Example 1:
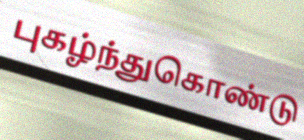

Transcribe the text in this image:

புகழ்ந்துகொண்டு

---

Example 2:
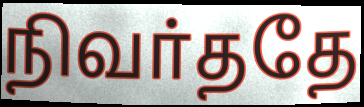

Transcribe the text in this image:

நிவர்ததே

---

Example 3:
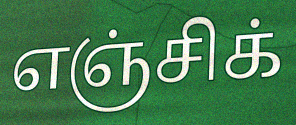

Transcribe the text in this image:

எஞ்சிக்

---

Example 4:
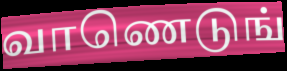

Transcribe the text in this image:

வாணெடுங்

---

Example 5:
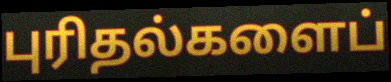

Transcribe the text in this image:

புரிதல்களைப்